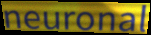
neuronal